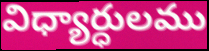
విధ్యార్ధులము